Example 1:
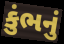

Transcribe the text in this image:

કુંભનું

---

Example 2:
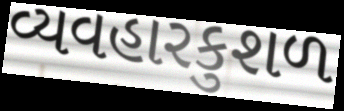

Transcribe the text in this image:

વ્યવહારકુશળ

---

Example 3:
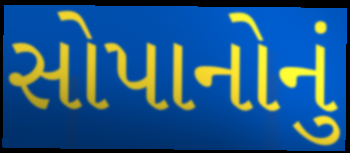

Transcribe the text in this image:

સોપાનોનું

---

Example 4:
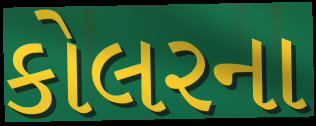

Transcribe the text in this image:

કોલરના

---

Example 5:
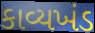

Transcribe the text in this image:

કાવ્યખંડ